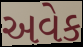
અવેક